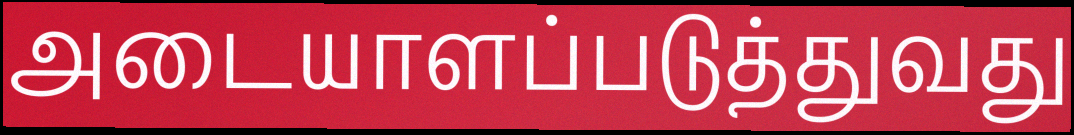
அடையாளப்படுத்துவது